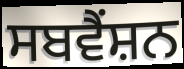
ਸਬਵੈਂਸ਼ਨ